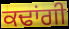
ਕਢਾਂਗੀ